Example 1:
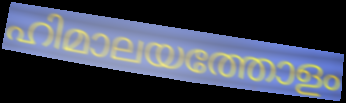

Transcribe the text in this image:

ഹിമാലയത്തോളം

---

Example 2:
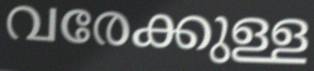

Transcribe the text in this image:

വരേക്കുള്ള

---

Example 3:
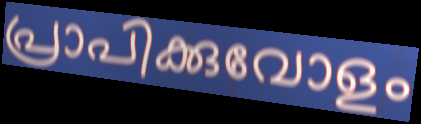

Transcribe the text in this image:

പ്രാപിക്കുവോളം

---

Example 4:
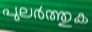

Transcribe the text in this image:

പുലർത്തുക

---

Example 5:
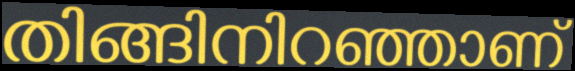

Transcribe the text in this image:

തിങ്ങിനിറഞ്ഞാണ്